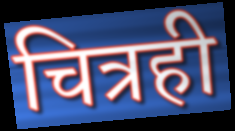
चित्रही